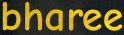
bharee